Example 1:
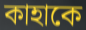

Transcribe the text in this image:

কাহাকে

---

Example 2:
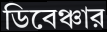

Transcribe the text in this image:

ডিবেঞ্চার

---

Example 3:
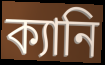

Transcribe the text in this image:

ক্যানি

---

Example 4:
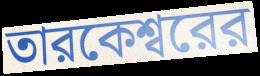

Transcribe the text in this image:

তারকেশ্বরের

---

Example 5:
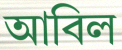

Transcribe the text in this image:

আবিল